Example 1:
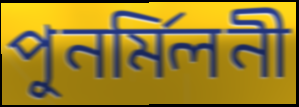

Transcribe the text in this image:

পুনর্মিলনী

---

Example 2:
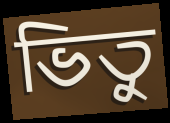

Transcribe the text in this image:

ভিতু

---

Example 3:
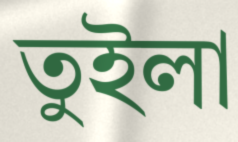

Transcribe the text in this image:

তুইলা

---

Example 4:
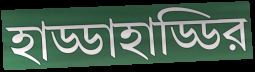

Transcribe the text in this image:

হাড্ডাহাড্ডির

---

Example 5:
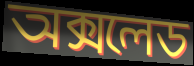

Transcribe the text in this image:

অক্সলেড